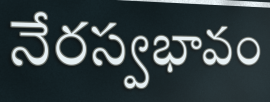
నేరస్వభావం